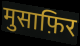
मुसाफ़िर